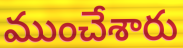
ముంచేశారు